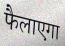
फैलाएगा